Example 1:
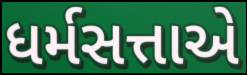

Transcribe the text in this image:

ધર્મસત્તાએ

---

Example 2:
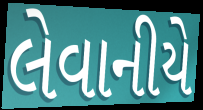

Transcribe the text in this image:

લેવાનીયે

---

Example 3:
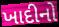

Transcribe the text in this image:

ખાદીનો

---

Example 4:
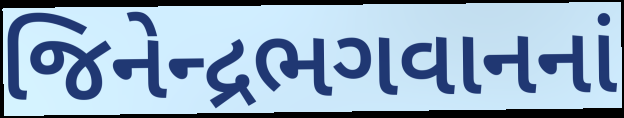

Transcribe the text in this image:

જિનેન્દ્રભગવાનનાં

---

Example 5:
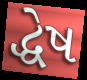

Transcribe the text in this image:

દ્ધેષ